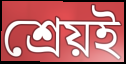
শ্রেয়ই